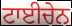
ਟਾਈਚੇਨ